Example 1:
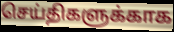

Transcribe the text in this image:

செய்திகளுக்காக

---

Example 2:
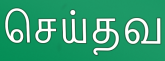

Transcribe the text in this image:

செய்தவ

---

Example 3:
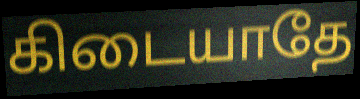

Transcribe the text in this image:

கிடையாதே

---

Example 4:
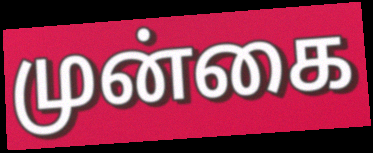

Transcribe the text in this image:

முன்கை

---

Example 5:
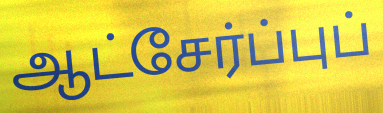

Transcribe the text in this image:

ஆட்சேர்ப்புப்